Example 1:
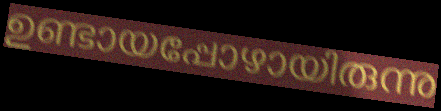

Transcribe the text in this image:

ഉണ്ടായപ്പോഴായിരുന്നു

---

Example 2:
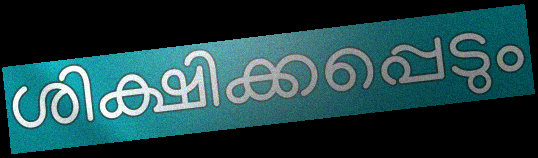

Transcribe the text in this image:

ശിക്ഷിക്കപ്പെടും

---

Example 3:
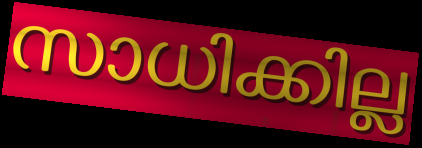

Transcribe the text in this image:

സാധിക്കില്ല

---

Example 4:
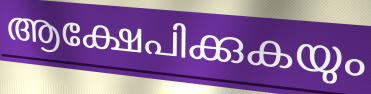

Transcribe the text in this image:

ആക്ഷേപിക്കുകയും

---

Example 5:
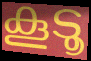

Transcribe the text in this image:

കൂടൂ